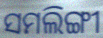
ସମଲିଙ୍ଗୀ